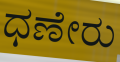
ಧಣೇರು